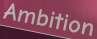
Ambition